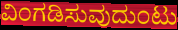
ವಿಂಗಡಿಸುವುದುಂಟು